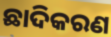
ଛାଦିକରଣ